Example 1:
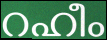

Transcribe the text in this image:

റഹീം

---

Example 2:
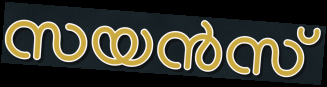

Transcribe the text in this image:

സയൻസ്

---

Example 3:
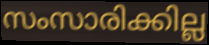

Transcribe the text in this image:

സംസാരിക്കില്ല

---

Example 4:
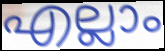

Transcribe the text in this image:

എല്ലാം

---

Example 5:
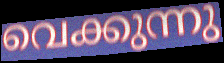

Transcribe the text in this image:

വെക്കുന്നു